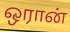
ஒரான்